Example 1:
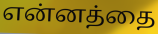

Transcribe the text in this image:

என்னத்தை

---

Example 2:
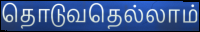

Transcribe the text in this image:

தொடுவதெல்லாம்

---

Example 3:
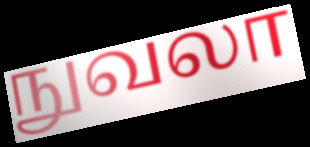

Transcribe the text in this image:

நுவலா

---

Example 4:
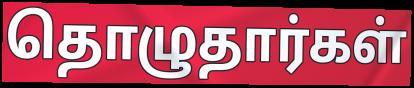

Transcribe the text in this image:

தொழுதார்கள்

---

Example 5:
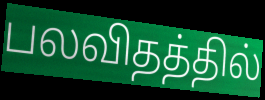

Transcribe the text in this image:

பலவிதத்தில்